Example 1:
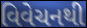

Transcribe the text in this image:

વિવેચનથી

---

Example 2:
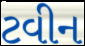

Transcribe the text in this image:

ટવીન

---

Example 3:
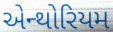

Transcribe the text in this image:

એન્થોરિયમ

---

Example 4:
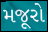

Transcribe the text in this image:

મજૂરો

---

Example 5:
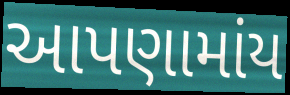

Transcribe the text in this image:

આપણામાંય